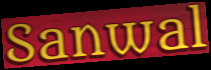
Sanwal